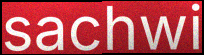
sachwi